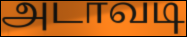
அடாவடி